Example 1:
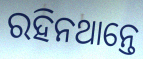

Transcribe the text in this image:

ରହିନଥାନ୍ତେ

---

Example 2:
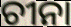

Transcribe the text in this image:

ଚୀନା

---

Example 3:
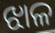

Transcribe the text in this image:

ଝାଳ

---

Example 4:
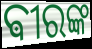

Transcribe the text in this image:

ଵୀରଙ୍କ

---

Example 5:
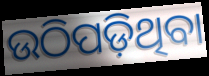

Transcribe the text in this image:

ଉଠିପଡ଼ିଥିବା